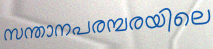
സന്താനപരമ്പരയിലെ